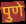
पुणे